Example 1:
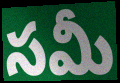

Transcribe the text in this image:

సమీ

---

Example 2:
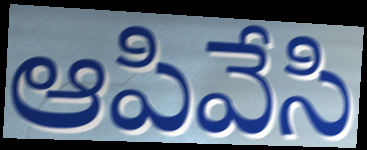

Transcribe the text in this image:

ఆపివేసి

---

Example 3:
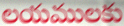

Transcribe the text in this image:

లయములకు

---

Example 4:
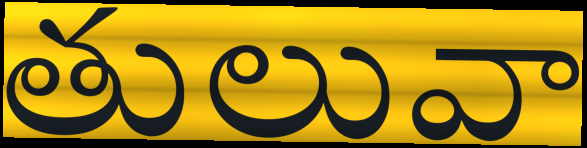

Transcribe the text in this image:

తులువా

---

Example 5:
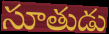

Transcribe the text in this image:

సూతుడు